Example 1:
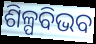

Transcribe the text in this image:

ଶିଳ୍ପବିଭବ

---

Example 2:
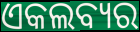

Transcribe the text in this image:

ଏକଲବ୍ୟର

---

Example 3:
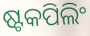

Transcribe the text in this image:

ଷ୍ଟକପିଲିଂ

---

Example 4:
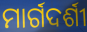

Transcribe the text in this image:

ମାର୍ଗଦର୍ଶୀ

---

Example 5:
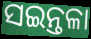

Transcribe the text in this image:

ସଇନ୍ତଳା